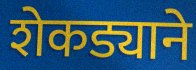
शेकड्याने